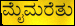
ಮೈಮರೆತು